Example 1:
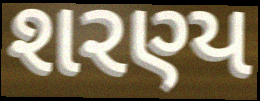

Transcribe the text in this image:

શરણ્ય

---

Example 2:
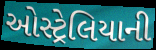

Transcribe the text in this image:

ઓસ્ટ્રેલિયાની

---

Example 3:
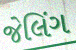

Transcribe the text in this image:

જેલિંગ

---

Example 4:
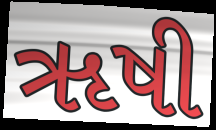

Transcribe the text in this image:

ૠષી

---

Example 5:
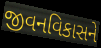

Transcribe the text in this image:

જીવનવિકાસને